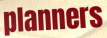
planners